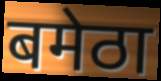
बमेठा